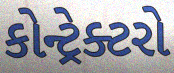
કોન્ટ્રેક્ટરો